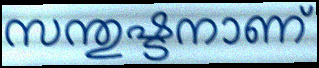
സന്തുഷ്ടനാണ്